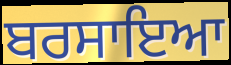
ਬਰਸਾਇਆ